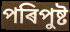
পৰিপুষ্ট